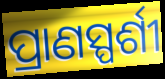
ପ୍ରାଣସ୍ପର୍ଶୀ